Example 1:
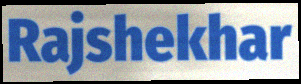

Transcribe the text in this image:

Rajshekhar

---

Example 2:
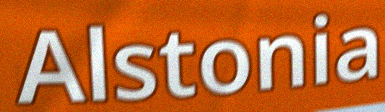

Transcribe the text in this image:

Alstonia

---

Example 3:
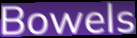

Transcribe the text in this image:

Bowels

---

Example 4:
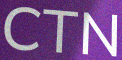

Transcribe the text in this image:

CTN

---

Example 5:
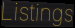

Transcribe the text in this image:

Listings